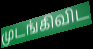
முடங்கிவிட